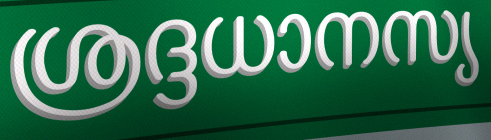
ശ്രദ്ദധാനസ്യ